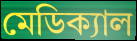
মেডিক্যাল